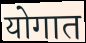
योगात